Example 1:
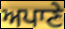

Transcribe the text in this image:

ਅਪਾਣੇ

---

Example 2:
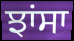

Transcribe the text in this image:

ਝਾਂਸਾ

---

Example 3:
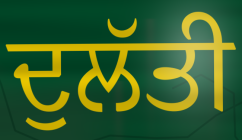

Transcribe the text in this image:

ਦੁਲੱਤੀ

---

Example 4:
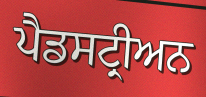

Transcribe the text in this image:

ਪੈਡਸਟ੍ਰੀਅਨ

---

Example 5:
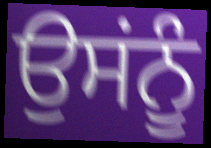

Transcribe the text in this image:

ਉਸਂਨੂੰ